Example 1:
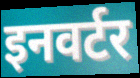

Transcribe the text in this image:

इनवर्टर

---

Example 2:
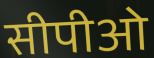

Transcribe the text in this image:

सीपीओ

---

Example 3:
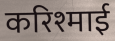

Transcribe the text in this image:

करिश्माई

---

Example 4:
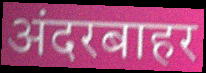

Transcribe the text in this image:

अंदरबाहर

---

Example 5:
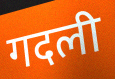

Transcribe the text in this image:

गदली